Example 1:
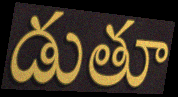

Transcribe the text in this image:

డుతూ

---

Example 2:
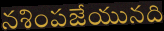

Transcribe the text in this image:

నశింపజేయునది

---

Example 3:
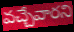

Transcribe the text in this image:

వచ్చేవారని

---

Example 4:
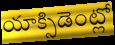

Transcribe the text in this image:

యాక్సిడెంట్లో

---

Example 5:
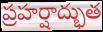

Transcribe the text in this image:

ప్రహర్షాద్భుత